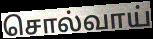
சொல்வாய்